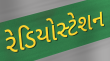
રેડિયોસ્ટેશન